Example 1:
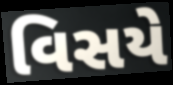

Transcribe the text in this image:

વિસયે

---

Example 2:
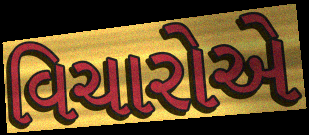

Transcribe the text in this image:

વિચારોએ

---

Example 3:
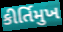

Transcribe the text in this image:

કીર્તિમુખ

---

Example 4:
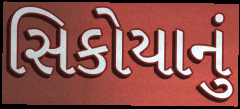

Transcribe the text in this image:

સિકોયાનું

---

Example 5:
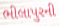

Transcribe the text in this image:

ભીલાપુરની